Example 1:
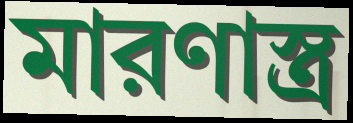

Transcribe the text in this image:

মারণাস্ত্র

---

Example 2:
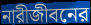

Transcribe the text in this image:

নারীজীবনের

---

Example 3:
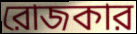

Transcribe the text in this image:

রোজকার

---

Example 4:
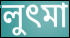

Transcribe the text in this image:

লুৎমা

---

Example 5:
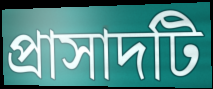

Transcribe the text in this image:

প্রাসাদটি